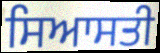
ਸਿਆਸਤੀ